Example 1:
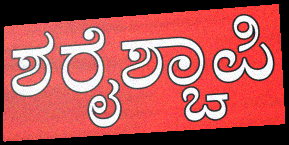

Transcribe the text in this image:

ಶರೈಶ್ಚಾಪಿ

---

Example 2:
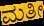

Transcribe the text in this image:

ಮತೀ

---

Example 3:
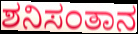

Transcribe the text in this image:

ಶನಿಸಂತಾನ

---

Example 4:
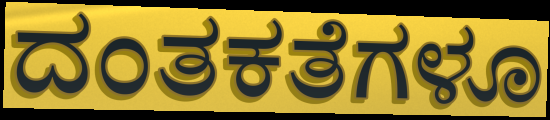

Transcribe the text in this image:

ದಂತಕತೆಗಳೂ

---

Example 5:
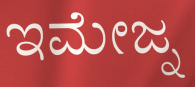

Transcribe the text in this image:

ಇಮೇಜ್ನ